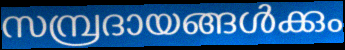
സമ്പ്രദായങ്ങൾക്കും